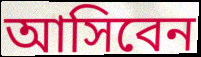
আসিবেন